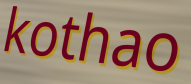
kothao